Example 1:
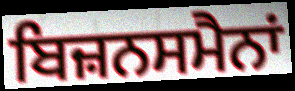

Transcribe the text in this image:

ਬਿਜ਼ਨਸਮੈਨਾਂ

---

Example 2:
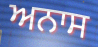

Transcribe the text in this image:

ਅਨਾਸ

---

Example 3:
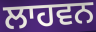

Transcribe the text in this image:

ਲਾਹਵਨ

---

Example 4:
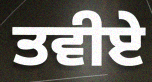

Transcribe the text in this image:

ਤਵੀਏ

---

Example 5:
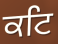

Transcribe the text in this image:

ਕਟਿ